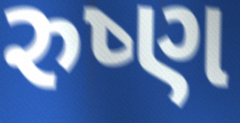
રુષ્ણ